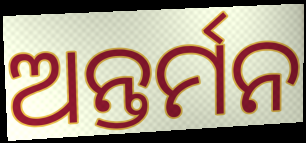
ଅନ୍ତର୍ମନ